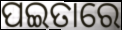
ପଇତାରେ